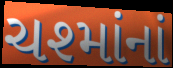
ચશ્માંનાં